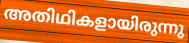
അതിഥികളായിരുന്നു